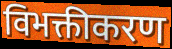
विभक्तीकरण